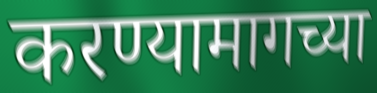
करण्यामागच्या